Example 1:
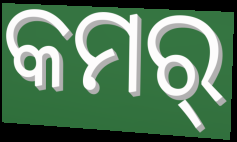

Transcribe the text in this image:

କମର୍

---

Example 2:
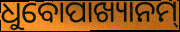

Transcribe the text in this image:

ଧୁବୋପାଖ୍ୟାନମ୍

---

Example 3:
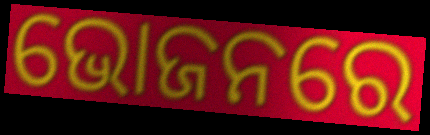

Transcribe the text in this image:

ଭୋଜନରେ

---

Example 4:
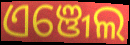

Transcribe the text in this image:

ଏଞ୍ଜେଲ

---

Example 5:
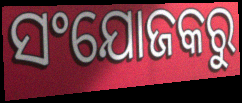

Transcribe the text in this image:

ସଂଯୋଜକରୁ